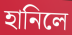
হানিলে